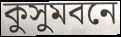
কুসুমবনে